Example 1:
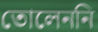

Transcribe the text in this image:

তোলেননি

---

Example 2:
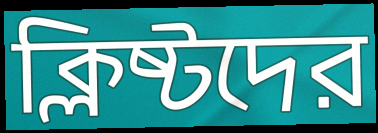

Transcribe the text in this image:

ক্লিষ্টদের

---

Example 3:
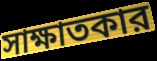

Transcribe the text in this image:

সাক্ষাতকার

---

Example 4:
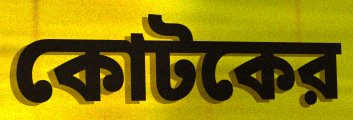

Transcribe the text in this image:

কোটকের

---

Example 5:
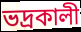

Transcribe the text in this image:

ভদ্রকালী